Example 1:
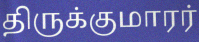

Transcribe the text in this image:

திருக்குமாரர்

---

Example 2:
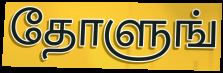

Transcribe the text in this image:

தோளுங்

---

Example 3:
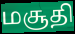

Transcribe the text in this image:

மசூதி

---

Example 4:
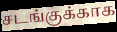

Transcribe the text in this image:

சடங்குக்காக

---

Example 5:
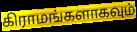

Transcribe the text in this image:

கிராமங்களாகவும்